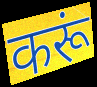
करूं